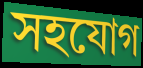
সহযোগ